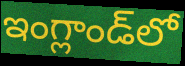
ఇంగ్లాండ్‌లో